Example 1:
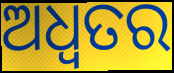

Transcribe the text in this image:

ଅଧ୍ଵତର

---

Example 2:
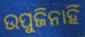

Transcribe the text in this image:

ଉପୁଜିନାହିଁ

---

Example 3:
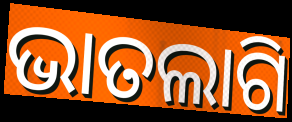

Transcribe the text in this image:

ଭାତଲାଗି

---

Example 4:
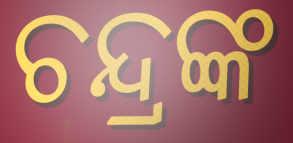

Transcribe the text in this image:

ଚନ୍ଦ୍ରଙ୍କ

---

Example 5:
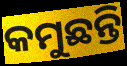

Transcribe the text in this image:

କମୁଛନ୍ତି